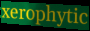
xerophytic